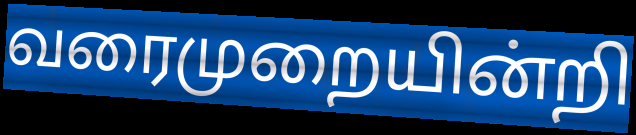
வரைமுறையின்றி